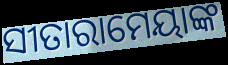
ସୀତାରାମେୟାଙ୍କ